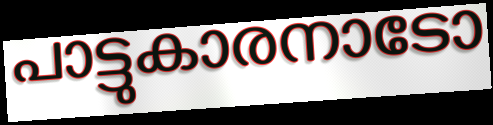
പാട്ടുകാരനാടോ